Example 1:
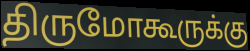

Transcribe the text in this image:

திருமோகூருக்கு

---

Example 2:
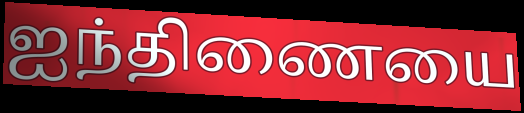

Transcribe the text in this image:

ஐந்திணையை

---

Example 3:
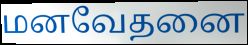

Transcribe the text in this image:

மனவேதனை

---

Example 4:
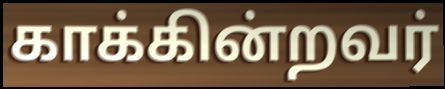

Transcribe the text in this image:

காக்கின்றவர்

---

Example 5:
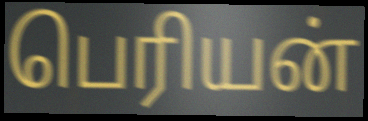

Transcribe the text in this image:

பெரியன்